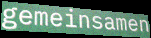
gemeinsamen